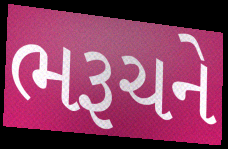
ભરૂચને